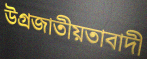
উগ্রজাতীয়তাবাদী